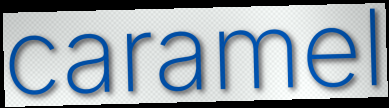
caramel